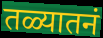
तळ्यातनं